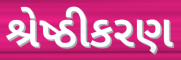
શ્રેષ્ઠીકરણ